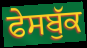
ਫੇਸਬੁੱਕ